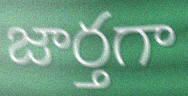
జార్తగా